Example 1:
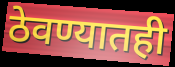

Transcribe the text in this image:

ठेवण्यातही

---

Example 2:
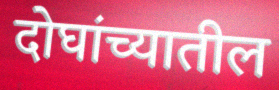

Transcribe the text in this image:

दोघांच्यातील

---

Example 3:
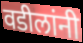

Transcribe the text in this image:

वडीलांनी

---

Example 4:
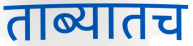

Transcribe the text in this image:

ताब्यातच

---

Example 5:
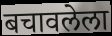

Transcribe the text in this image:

बचावलेला